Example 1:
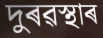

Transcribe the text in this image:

দুৰৱস্থাৰ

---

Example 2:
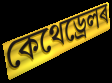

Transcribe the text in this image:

কেথেড্ৰেলৰ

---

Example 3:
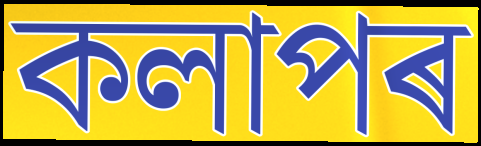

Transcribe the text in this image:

কলাপৰ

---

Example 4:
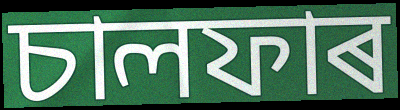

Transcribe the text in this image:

চালফাৰ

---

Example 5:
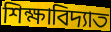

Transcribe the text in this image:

শিক্ষাবিদ্যাত